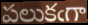
పలుకఁగా